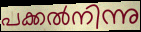
പക്കൽനിന്നു